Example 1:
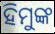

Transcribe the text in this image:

ହିମୁଙ୍କ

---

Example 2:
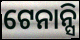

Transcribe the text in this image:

ଟେନାନ୍ସି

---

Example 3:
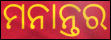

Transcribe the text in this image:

ମନାନ୍ତର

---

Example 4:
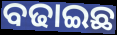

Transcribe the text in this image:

ବଢାଇଛ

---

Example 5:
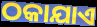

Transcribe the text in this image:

ଠକାଯାଏ